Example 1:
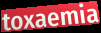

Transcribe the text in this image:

toxaemia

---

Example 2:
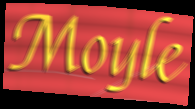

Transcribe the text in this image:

Moyle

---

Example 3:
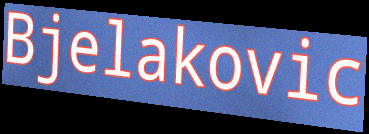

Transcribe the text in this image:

Bjelakovic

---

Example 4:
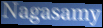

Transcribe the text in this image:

Nagasamy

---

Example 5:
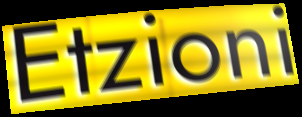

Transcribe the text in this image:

Etzioni